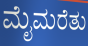
ಮೈಮರೆತು